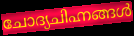
ചോദ്യചിഹ്നങ്ങൾ